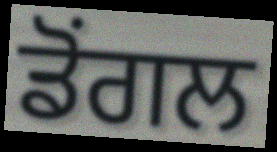
ਡੋਂਗਲ